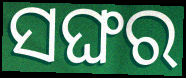
ସଙ୍ଘର